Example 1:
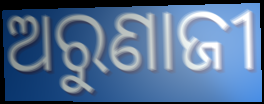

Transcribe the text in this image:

ଅରୁଣାଜୀ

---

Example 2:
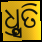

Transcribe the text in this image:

ଧ୍ତ୍ସତି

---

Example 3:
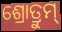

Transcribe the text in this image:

ଶ୍ରୋତ୍ରୁମ୍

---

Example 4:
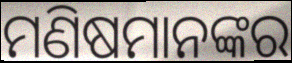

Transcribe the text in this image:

ମଣିଷମାନଙ୍କର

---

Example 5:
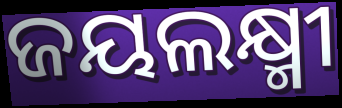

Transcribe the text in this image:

ଜୟଲକ୍ଷ୍ମୀ